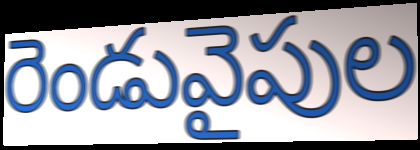
రెండువైపుల